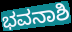
ಭವನಾಶಿ